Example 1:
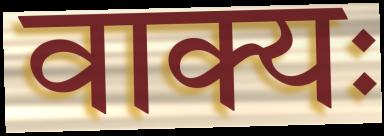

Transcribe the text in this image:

वाक्यः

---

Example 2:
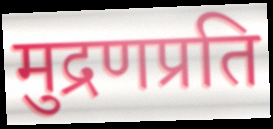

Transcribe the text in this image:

मुद्रणप्रति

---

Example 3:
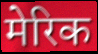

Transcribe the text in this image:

मेरिक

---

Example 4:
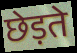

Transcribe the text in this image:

छेड़ते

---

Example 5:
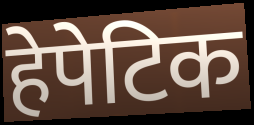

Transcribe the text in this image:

हेपेटिक